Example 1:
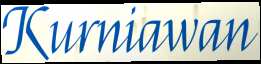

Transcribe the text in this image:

Kurniawan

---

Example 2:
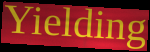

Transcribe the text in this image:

Yielding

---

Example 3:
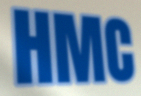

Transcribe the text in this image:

HMC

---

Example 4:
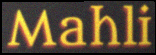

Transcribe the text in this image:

Mahli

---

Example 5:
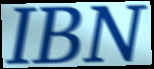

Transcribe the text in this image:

IBN